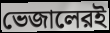
ভেজালেরই